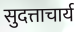
सुदत्ताचार्य